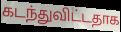
கடந்துவிட்டதாக